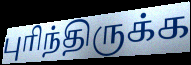
புரிந்திருக்க